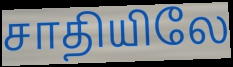
சாதியிலே